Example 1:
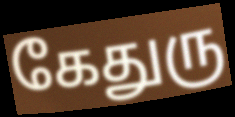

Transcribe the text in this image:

கேதுரு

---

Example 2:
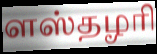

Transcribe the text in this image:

ளஸ்தழரி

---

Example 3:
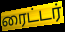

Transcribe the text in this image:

ரைட்டர்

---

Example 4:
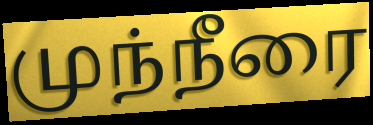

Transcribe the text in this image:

முந்நீரை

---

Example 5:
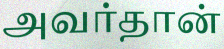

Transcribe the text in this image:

அவர்தான்